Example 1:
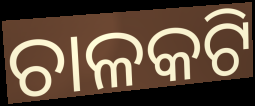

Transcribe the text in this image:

ଚାଳକଟି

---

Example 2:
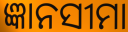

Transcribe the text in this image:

ଜ୍ଞାନସୀମା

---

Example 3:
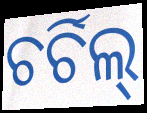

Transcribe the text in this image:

ଚର୍ଚିଲ୍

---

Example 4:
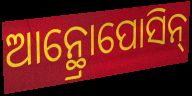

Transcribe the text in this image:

ଆନ୍ଥ୍ରୋପୋସିନ୍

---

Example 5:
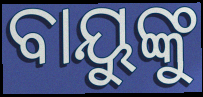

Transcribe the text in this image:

ବାୟୁଙ୍କୁ